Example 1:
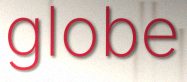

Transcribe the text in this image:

globe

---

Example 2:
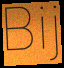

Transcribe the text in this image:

Bij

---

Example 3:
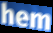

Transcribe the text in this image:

hem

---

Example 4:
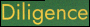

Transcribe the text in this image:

Diligence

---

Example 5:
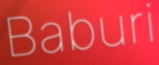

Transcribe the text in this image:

Baburi